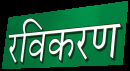
रविकरण